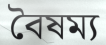
বৈষম্য